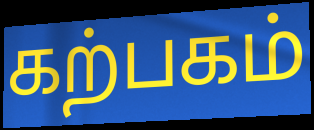
கற்பகம்